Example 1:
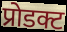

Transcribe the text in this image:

प्रोडक्ट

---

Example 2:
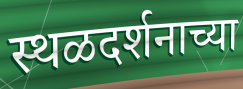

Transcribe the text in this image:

स्थळदर्शनाच्या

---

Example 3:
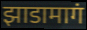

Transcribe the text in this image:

झाडामागं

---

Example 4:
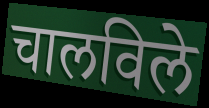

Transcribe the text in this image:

चालविले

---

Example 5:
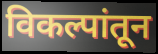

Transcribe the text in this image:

विकल्पांतून